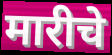
मारीचे